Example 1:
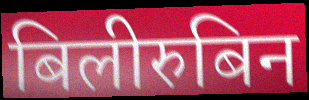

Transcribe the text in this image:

बिलीरुबिन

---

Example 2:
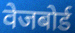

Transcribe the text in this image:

वेजबोर्ड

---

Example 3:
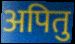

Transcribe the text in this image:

अपितु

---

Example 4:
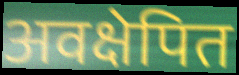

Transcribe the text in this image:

अवक्षेपित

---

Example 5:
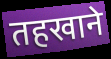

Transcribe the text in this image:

तहखाने